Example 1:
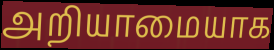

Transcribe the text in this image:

அறியாமையாக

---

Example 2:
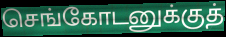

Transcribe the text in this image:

செங்கோடனுக்குத்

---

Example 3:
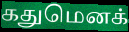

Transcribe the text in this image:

கதுமெனக்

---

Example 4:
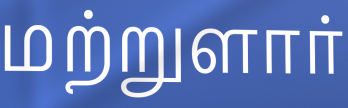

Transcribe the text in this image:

மற்றுளார்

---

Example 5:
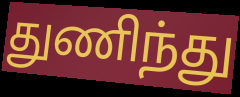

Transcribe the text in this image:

துணிந்து